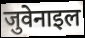
जुवेनाइल